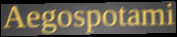
Aegospotami